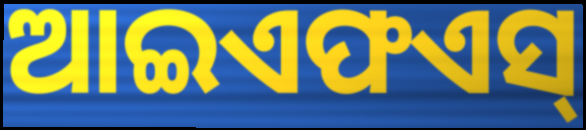
ଆଇଏଫଏସ୍